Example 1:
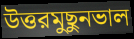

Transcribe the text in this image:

উত্তরমুছুনভাল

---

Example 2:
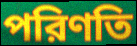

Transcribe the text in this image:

পরিণতি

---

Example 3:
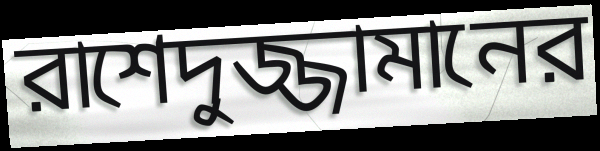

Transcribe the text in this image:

রাশেদুজ্জামানের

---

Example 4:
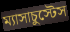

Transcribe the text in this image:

ম্যাসাচুস্টেস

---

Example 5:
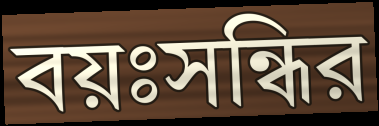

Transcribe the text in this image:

বয়ঃসন্ধির